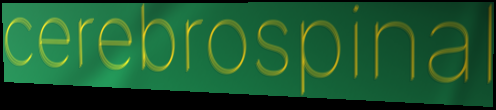
cerebrospinal